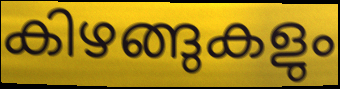
കിഴങ്ങുകളും